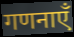
गणनाएँ